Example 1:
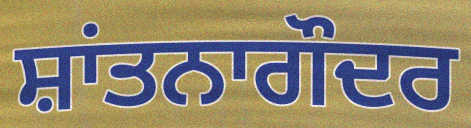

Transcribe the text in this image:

ਸ਼ਾਂਤਨਾਗੌਦਰ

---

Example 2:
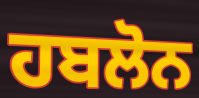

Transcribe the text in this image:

ਹਬਲੋਨ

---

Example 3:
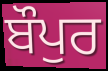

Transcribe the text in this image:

ਬੌਪੁਰ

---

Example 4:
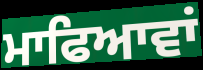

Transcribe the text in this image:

ਮਾਫਿਆਵਾਂ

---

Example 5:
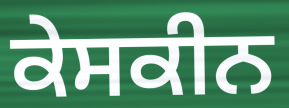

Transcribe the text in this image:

ਕੇਸਕੀਨ